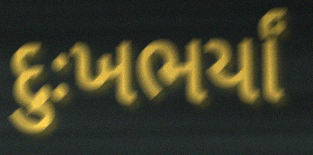
દુઃખભર્યાં